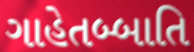
ગાહેતબ્બાતિ